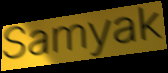
Samyak